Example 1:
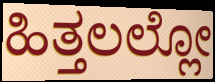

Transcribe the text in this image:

ಹಿತ್ತಲಲ್ಲೋ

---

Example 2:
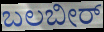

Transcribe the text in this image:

ಬಲಬೀರ್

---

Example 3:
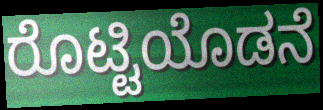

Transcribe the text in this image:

ರೊಟ್ಟಿಯೊಡನೆ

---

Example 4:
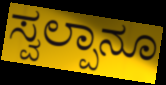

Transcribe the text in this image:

ಸ್ವಲ್ಪಾನೂ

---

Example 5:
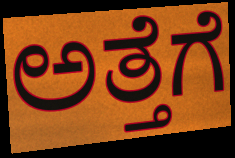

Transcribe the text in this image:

ಅತ್ತೆಗೆ